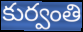
కుర్వంతి